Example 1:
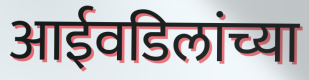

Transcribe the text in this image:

आईवडिलांच्या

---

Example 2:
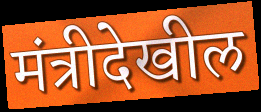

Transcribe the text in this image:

मंत्रीदेखील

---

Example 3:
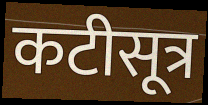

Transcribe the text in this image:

कटीसूत्र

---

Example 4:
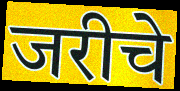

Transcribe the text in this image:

जरीचे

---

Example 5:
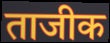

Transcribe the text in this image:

ताजीक